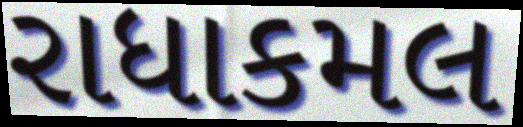
રાધાકમલ